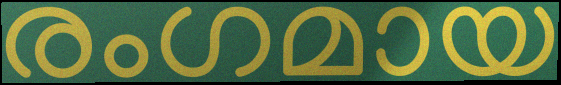
രംഗമായ